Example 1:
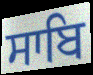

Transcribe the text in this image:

ਸਾਬਿ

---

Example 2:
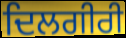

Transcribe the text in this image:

ਦਿਲਗੀਰੀ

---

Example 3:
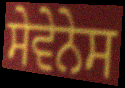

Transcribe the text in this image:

ਸੇਵੇਨੇਸ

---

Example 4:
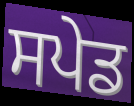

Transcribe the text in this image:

ਸਪੇਡ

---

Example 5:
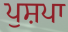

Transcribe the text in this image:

ਪੁਸ਼ਪਾ